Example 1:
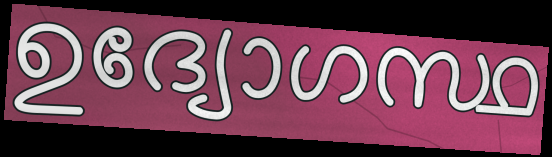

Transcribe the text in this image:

ഉദ്യോഗസ്ഥ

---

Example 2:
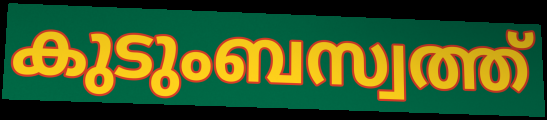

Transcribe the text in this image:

കുടുംബസ്വത്ത്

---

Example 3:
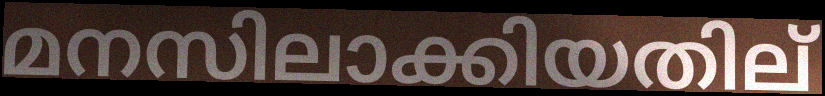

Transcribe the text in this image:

മനസിലാക്കിയതില്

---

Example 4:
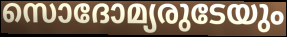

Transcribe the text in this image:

സൊദോമ്യരുടേയും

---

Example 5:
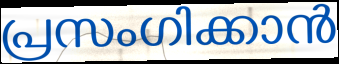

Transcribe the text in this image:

പ്രസംഗിക്കാൻ